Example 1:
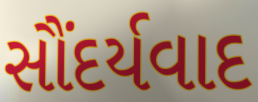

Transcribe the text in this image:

સૌંદર્યવાદ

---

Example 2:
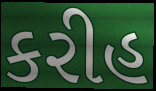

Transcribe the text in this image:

કરીહ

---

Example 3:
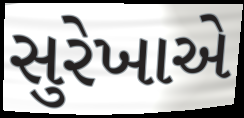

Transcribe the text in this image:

સુરેખાએ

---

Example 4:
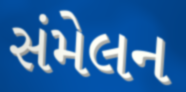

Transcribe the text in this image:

સંમેલન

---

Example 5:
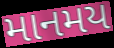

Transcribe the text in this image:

માનમય